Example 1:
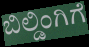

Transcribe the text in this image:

ಬಿಲ್ಡಿಂಗಿಗೆ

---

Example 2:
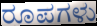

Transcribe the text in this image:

ರೂಪಗಳು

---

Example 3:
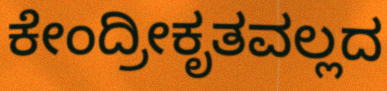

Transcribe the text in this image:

ಕೇಂದ್ರೀಕೃತವಲ್ಲದ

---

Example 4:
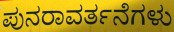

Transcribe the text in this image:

ಪುನರಾವರ್ತನೆಗಳು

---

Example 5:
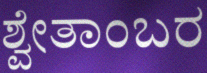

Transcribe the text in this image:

ಶ್ವೇತಾಂಬರ